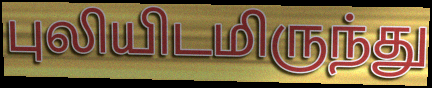
புலியிடமிருந்து